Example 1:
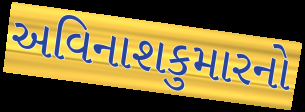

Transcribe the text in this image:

અવિનાશકુમારનો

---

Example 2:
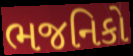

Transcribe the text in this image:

ભજનિકો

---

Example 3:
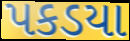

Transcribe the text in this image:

પકડયા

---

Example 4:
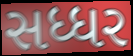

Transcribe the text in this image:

સધ્ધર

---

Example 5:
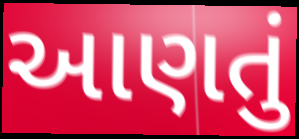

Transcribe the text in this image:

આણતું